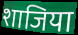
शाजिया